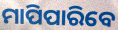
ମାପିପାରିବେ